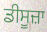
ਡੀਸੂਜ਼ਾ